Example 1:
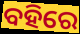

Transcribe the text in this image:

ବହିରେ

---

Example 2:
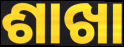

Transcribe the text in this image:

ଶାଖା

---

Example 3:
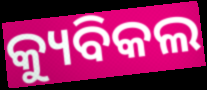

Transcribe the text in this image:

କ୍ୟୁବିକଲ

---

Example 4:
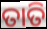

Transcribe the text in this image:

ତାତି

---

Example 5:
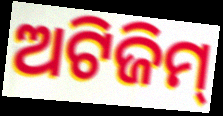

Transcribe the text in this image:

ଅଟିଜିମ୍